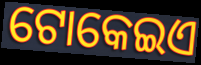
ଟୋକେଇଏ